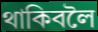
থাকিবলৈ